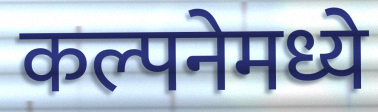
कल्पनेमध्ये